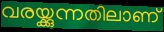
വരയ്ക്കുന്നതിലാണ്